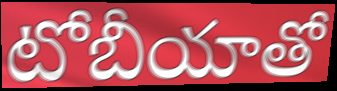
టోబీయాతో